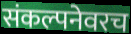
संकल्पनेवरच